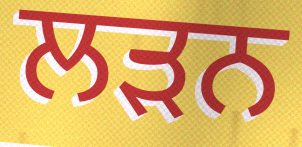
ਲੜਨ